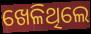
ଖେଳିଥିଲେ